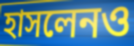
হাসলেনও